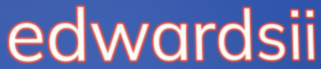
edwardsii